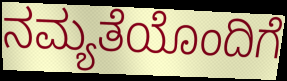
ನಮ್ಯತೆಯೊಂದಿಗೆ